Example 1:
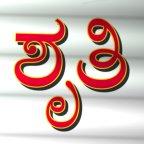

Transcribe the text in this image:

ಶೃತಿ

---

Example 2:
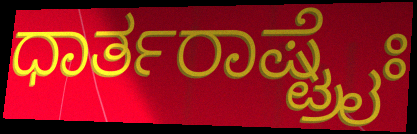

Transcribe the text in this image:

ಧಾರ್ತರಾಷ್ಟ್ರೈಃ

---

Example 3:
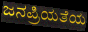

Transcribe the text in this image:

ಜನಪ್ರಿಯತೆಯ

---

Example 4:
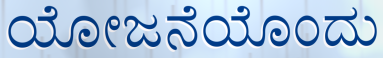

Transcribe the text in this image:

ಯೋಜನೆಯೊಂದು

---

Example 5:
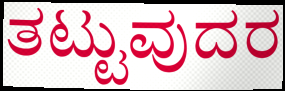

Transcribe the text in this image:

ತಟ್ಟುವುದರ